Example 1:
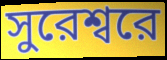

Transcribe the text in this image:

সুরেশ্বরে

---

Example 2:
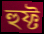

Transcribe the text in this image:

হুফ্ট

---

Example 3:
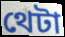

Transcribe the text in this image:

থেটা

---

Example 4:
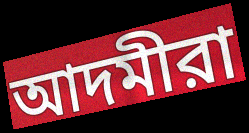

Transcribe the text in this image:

আদমীরা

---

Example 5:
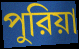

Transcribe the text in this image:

পুরিয়া